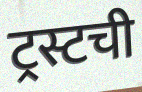
ट्रस्टची